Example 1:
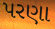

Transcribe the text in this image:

પરણા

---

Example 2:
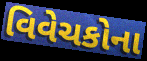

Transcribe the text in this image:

વિવેચકોના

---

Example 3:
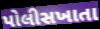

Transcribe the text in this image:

પોલીસખાતા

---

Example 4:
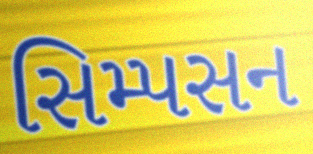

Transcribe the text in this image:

સિમ્પસન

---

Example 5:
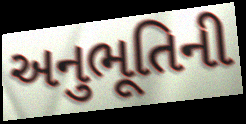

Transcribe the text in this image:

અનુભૂતિની